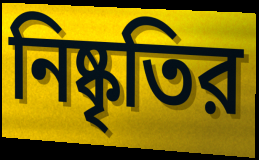
নিষ্কৃতির